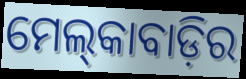
ମେଲ୍‍କାବାଡ଼ିର